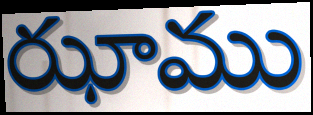
ఝాము